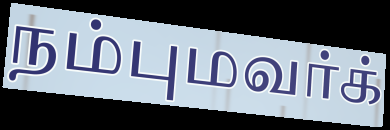
நம்புமவர்க்